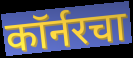
कॉर्नरचा